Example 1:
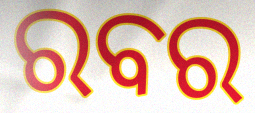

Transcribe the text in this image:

ରବର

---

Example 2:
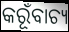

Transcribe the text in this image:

କରୂଁବାଚ୍ୟ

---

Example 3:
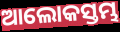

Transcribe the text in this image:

ଆଲୋକସ୍ତମ୍ଭ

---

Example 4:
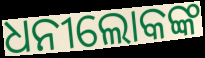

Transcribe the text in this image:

ଧନୀଲୋକଙ୍କ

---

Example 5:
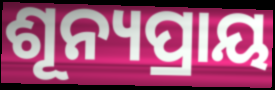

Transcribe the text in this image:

ଶୂନ୍ୟପ୍ରାୟ